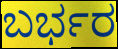
ಬರ್ಭರ